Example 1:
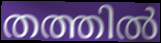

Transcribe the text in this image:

തത്തിൽ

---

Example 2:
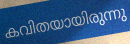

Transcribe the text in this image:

കവിതയായിരുന്നു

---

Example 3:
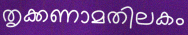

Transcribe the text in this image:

തൃക്കണാമതിലകം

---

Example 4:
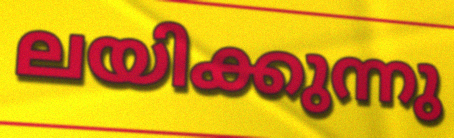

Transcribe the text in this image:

ലയിക്കുന്നു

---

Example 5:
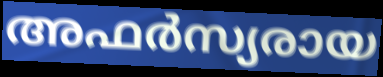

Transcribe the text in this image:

അഫർസ്യരായ